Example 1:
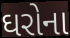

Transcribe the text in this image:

ઘરોના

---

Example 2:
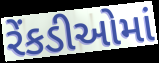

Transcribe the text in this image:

રેંકડીઓમાં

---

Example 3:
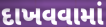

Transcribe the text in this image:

દાખવવામાં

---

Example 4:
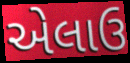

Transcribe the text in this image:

એલાઉ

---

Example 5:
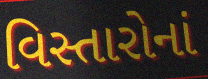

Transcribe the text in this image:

વિસ્તારોનાં